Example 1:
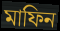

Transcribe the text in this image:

মাফিন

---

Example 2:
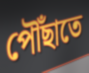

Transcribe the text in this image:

পৌঁছাতে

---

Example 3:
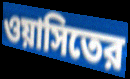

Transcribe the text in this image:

ওয়াসিতের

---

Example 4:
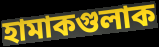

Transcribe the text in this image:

হামাকগুলাক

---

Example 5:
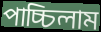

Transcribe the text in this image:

পাচ্চিলাম